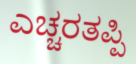
ಎಚ್ಚರತಪ್ಪಿ